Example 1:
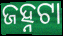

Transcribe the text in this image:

ଜହ୍ନଟା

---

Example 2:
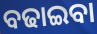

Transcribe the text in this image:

ବଢାଇବା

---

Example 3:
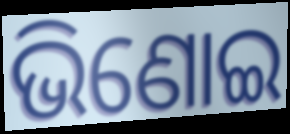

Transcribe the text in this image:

ଭିଣୋଇ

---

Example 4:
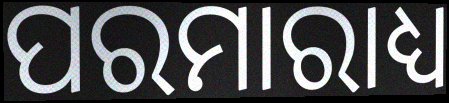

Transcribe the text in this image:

ପରମାରାଧ୍ୟ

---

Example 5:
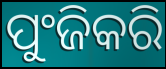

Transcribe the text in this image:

ପୁଂଜିକରି